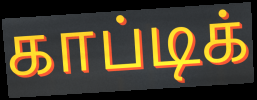
காப்டிக்